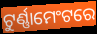
ଟୁର୍ଣ୍ଣାମେଂଟରେ